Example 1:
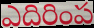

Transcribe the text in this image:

ఎదిరింప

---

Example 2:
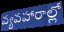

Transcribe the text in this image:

వ్యవహారాల్లో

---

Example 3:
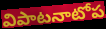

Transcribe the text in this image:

విపాటనాటోప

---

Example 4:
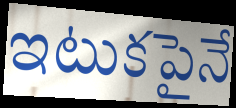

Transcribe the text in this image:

ఇటుకపైనే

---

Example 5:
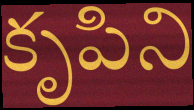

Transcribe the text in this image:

కృపిని